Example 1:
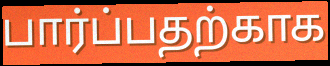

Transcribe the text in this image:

பார்ப்பதற்காக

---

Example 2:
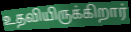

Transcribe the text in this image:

உதவியிருக்கிறார்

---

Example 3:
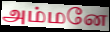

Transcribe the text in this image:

அம்மனே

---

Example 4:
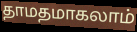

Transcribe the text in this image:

தாமதமாகலாம்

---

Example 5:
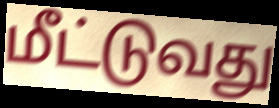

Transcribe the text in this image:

மீட்டுவது